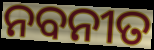
ନବନୀତ